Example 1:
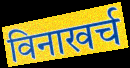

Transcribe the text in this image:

विनाखर्च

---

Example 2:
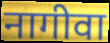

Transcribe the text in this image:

नागीवा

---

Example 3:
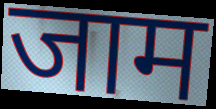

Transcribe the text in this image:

जाम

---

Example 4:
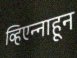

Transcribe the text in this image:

व्हिएन्नाहून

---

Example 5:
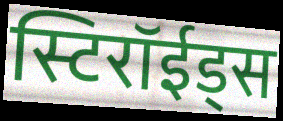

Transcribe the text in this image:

स्टिरॉईड्स